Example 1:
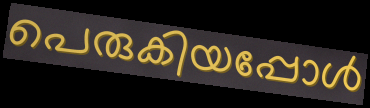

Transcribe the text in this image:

പെരുകിയപ്പോൾ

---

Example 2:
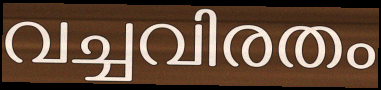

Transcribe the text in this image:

വച്ചവിരതം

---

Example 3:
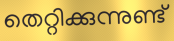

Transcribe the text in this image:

തെറ്റിക്കുന്നുണ്ട്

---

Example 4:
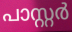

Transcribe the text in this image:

പാസ്റ്റർ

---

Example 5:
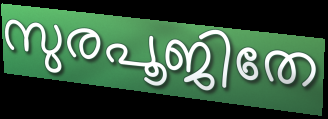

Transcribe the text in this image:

സുരപൂജിതേ